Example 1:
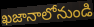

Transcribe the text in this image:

ఖజానాలోనుండి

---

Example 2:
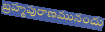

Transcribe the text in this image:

బ్రహ్మపురాణమునందు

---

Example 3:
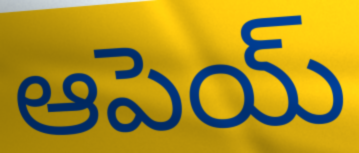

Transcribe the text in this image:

ఆపెయ్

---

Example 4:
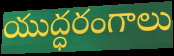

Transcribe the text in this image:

యుద్ధరంగాలు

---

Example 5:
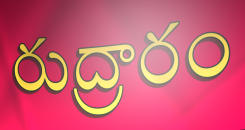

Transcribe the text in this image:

రుద్రారం